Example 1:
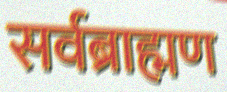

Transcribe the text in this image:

सर्वब्राह्मण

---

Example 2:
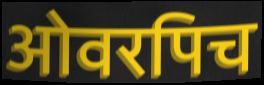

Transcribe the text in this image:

ओवरपिच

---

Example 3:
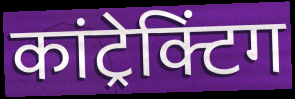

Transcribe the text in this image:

कांट्रेक्टिंग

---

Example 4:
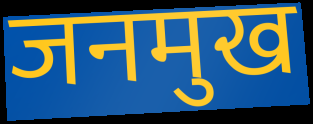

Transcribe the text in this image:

जनमुख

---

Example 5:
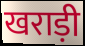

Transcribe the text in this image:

खराड़ी